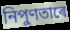
নিপুণতাৰে